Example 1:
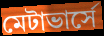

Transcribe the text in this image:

মেটাভার্সে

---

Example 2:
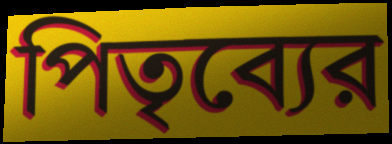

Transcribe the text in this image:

পিতৃব্যের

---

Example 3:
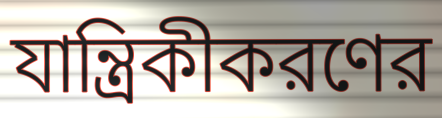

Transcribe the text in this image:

যান্ত্রিকীকরণের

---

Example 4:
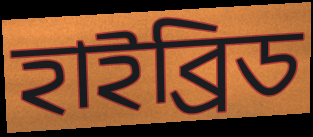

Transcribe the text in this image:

হাইব্রিড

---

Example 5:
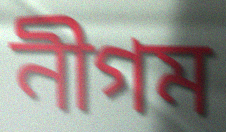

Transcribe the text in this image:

নীগম